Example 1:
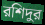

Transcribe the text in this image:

রশিদুর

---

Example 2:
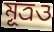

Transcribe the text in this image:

মূত্রও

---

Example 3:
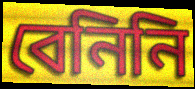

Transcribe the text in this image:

বেনিনি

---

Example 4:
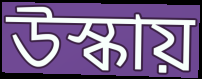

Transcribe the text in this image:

উস্কায়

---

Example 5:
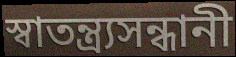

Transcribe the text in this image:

স্বাতন্ত্র্যসন্ধানী